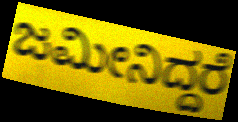
ಜಮೀನಿದ್ದರೆ